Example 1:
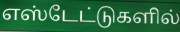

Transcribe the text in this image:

எஸ்டேட்டுகளில்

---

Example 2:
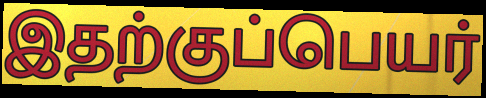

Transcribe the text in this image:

இதற்குப்பெயர்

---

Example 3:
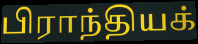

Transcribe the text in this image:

பிராந்தியக்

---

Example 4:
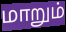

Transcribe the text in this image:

மாறும்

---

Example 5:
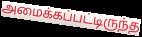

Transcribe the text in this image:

அமைக்கப்பட்டிருந்த